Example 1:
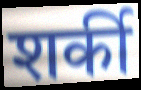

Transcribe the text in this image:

शर्की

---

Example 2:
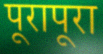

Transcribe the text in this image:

पूरापूरा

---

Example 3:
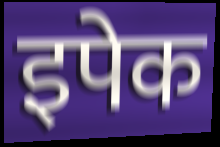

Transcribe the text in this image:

इपेक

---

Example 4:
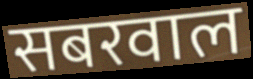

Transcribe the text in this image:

सबरवाल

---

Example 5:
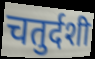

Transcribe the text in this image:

चतुर्दशी